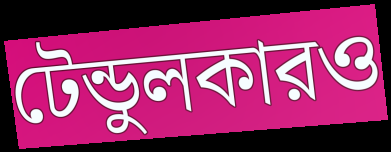
টেন্ডুলকারও